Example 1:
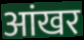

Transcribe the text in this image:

आंखर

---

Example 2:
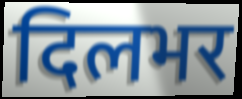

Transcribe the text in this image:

दिलभर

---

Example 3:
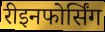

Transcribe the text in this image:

रीइनफोर्सिंग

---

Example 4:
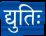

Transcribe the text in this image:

द्युतिः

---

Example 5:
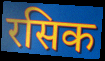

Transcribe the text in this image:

रसिक